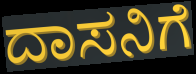
ದಾಸನಿಗೆ